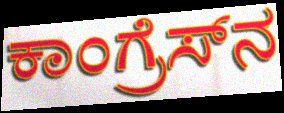
ಕಾಂಗ್ರೆಸ್‍ನ